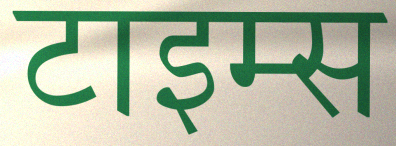
टाइम्स